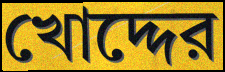
খোদ্দের